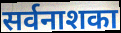
सर्वनाशका